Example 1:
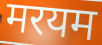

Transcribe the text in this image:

मरयम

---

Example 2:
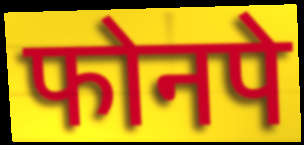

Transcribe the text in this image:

फोनपे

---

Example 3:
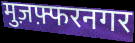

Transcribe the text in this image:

मुज़फ़्फरनगर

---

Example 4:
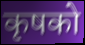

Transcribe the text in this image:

कृषको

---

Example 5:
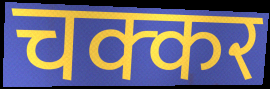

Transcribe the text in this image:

चक्‍कर